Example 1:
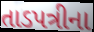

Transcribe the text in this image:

તાડપત્રીના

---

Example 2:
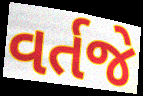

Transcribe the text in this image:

વર્તજે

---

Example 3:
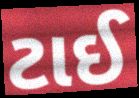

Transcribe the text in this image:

ટાઈ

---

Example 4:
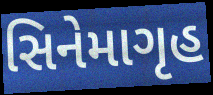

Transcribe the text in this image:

સિનેમાગૃહ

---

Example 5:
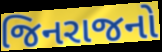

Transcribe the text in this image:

જિનરાજનો